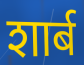
शार्ब